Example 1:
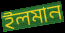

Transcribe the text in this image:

ইলমান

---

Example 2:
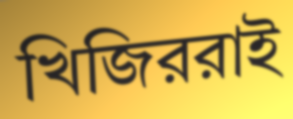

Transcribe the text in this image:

খিজিররাই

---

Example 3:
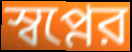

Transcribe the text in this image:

স্বপ্নের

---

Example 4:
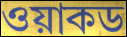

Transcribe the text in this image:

ওয়াকড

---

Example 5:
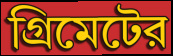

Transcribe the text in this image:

গ্রিমেটের